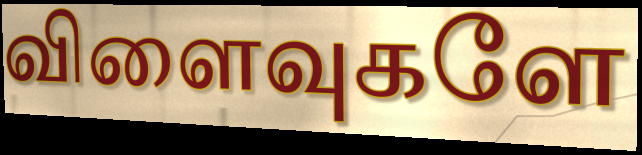
விளைவுகளே